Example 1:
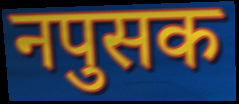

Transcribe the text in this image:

नपुसक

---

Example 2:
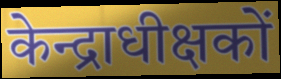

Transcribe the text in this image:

केन्द्राधीक्षकों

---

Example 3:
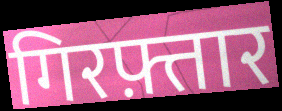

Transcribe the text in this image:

गिरफ़्तार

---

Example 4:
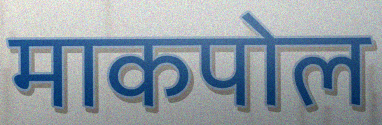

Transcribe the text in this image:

माकपोल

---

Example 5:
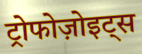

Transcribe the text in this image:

ट्रोफोज़ोइट्स